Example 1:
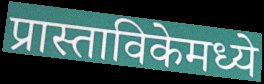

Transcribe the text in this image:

प्रास्ताविकेमध्ये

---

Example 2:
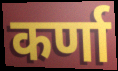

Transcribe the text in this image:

कर्णा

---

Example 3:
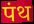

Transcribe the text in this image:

पंथ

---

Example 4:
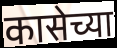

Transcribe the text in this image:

कासेच्या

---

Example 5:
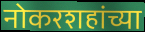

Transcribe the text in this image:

नोकरशहांच्या